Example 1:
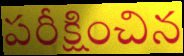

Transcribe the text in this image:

పరీక్షించిన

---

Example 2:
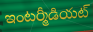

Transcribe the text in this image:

ఇంటర్మీడియట్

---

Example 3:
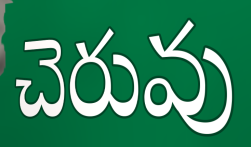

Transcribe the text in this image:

చెరువు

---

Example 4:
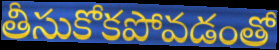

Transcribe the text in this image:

తీసుకోకపోవడంతో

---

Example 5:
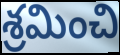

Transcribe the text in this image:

శ్రమించి